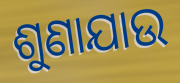
ଶୁଣାଯାଉ